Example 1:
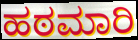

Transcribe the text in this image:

ಹಠಮಾರಿ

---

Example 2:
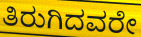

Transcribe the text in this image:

ತಿರುಗಿದವರೇ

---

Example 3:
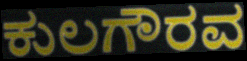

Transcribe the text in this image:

ಕುಲಗೌರವ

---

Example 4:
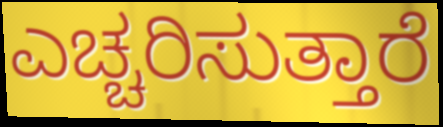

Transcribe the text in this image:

ಎಚ್ಚರಿಸುತ್ತಾರೆ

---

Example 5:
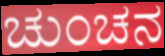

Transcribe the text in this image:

ಚುಂಚನ